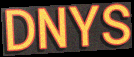
DNYS